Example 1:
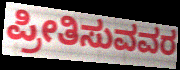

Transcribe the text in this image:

ಪ್ರೀತಿಸುವವರ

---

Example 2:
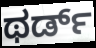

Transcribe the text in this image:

ಥರ್ಡ್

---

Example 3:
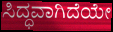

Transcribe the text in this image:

ಸಿದ್ಧವಾಗಿದೆಯೇ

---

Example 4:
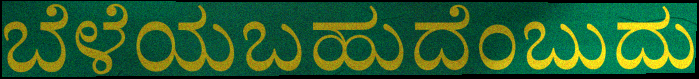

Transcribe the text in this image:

ಬೆಳೆಯಬಹುದೆಂಬುದು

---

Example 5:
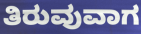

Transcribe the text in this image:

ತಿರುವುವಾಗ